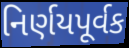
નિર્ણયપૂર્વક